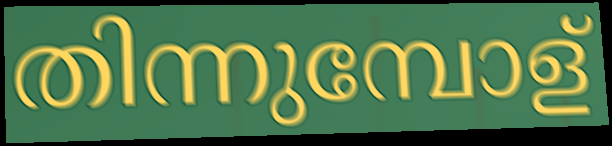
തിന്നുമ്പോള്